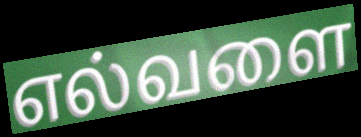
எல்வளை